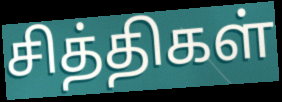
சித்திகள்